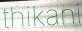
thikani